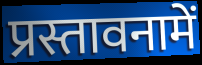
प्रस्तावनामें